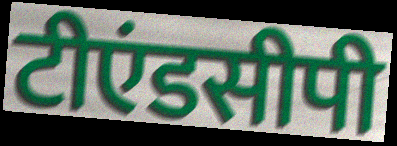
टीएंडसीपी